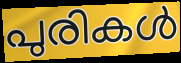
പുരികൾ